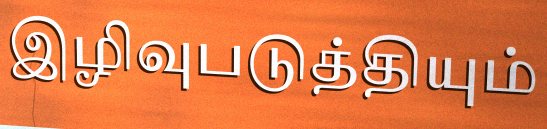
இழிவுபடுத்தியும்